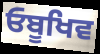
ਓਬੂਖਿਵ